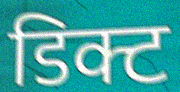
डिक्ट